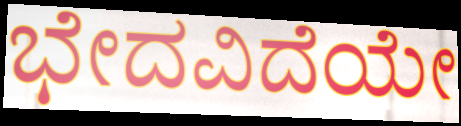
ಭೇದವಿದೆಯೇ